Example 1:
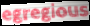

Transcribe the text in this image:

egregious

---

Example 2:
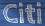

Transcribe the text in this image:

Citi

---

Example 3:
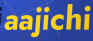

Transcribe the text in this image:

aajichi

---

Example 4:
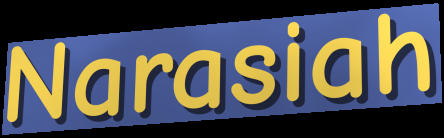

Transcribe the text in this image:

Narasiah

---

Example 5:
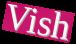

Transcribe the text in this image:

Vish